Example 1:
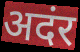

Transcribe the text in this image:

अदंर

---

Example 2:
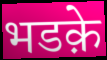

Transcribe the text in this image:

भडक़े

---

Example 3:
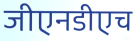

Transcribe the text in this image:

जीएनडीएच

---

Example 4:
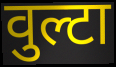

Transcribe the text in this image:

वुल्टा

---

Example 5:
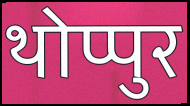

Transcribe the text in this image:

थोप्पुर